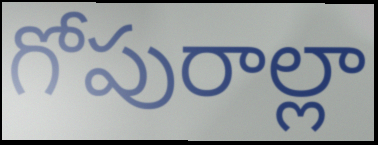
గోపురాల్లా